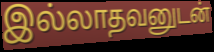
இல்லாதவனுடன்